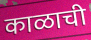
काळाची